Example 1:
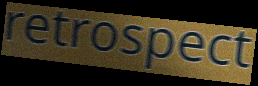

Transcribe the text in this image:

retrospect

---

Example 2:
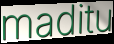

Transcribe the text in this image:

maditu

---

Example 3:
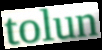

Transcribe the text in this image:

tolun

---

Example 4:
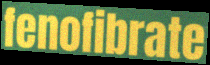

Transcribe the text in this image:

fenofibrate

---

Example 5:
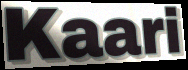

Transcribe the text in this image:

Kaari